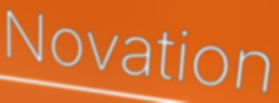
Novation